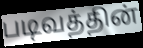
படிவத்தின்